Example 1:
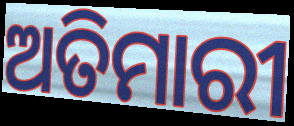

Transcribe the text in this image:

ଅତିମାରୀ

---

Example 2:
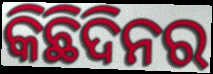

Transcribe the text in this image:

କିଛିଦିନର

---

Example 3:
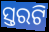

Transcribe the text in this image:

ସ୍ତରଟି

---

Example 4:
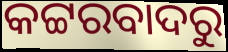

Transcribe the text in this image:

କଟ୍ଟରବାଦରୁ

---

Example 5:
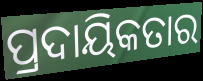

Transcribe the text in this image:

ପ୍ରଦାୟିକତାର